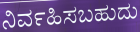
ನಿರ್ವಹಿಸಬಹುದು